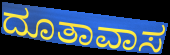
ದೂತಾವಾಸ